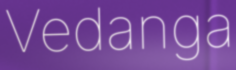
Vedanga